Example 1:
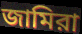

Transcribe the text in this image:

জামিরা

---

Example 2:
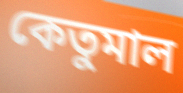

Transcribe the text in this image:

কেতুমাল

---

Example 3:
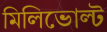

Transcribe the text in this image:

মিলিভোল্ট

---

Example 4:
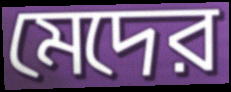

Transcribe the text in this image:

মেদের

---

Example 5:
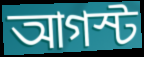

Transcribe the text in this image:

আগস্ট